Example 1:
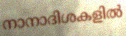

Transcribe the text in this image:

നാനാദിശകളിൽ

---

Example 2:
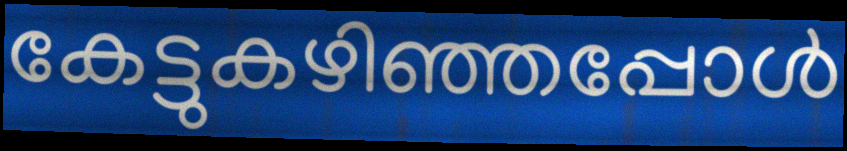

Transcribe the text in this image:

കേട്ടുകഴിഞ്ഞപ്പോൾ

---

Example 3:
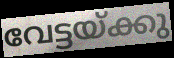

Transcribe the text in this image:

വേട്ടയ്ക്കു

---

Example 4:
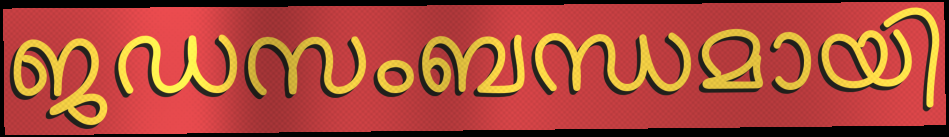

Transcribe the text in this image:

ജഡസംബന്ധമായി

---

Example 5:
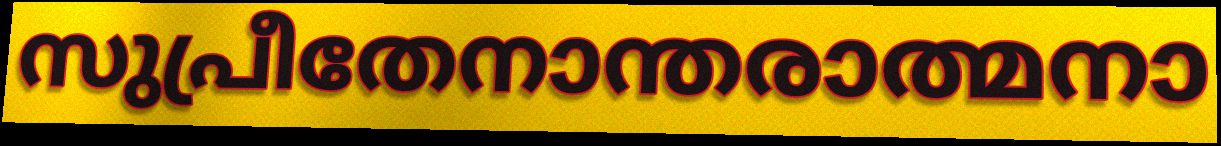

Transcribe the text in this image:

സുപ്രീതേനാന്തരാത്മനാ